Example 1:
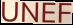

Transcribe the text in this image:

UNEF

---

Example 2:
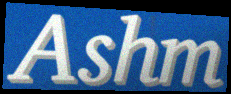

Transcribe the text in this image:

Ashm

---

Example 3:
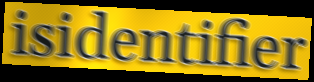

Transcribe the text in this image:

isidentifier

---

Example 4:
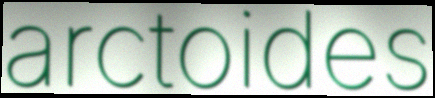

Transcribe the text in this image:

arctoides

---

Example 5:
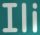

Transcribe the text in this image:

Ili